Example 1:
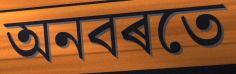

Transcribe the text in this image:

অনবৰতে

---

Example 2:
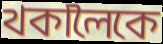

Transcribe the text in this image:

থকালৈকে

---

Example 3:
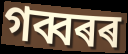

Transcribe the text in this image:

গব্বৰৰ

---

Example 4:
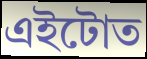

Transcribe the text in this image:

এইটোত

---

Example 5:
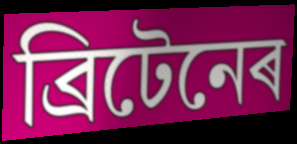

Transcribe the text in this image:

ব্ৰিটেনেৰ